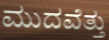
ಮುದವೆತ್ತು